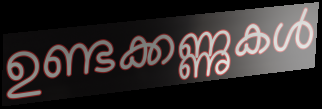
ഉണ്ടക്കണ്ണുകൾ